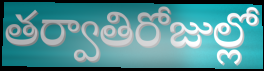
తర్వాతిరోజుల్లో